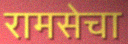
रामसेचा